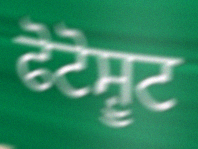
ਫੋਟੋਸ਼ੂਟ